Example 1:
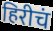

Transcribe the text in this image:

हिरीचं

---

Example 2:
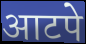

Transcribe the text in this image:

आटपे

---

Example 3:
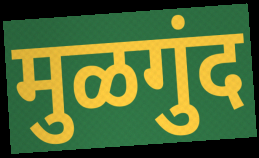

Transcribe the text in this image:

मुळगुंद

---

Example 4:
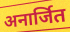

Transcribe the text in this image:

अनार्जित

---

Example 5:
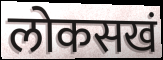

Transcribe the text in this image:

लोकसखं